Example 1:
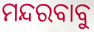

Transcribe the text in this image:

ମନ୍ଦରବାବୁ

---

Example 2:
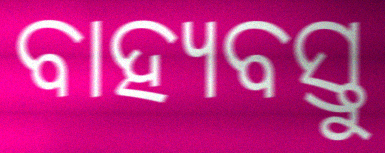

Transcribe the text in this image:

ବାହ୍ୟବସ୍ତୁ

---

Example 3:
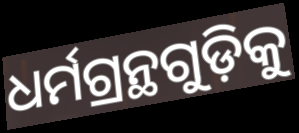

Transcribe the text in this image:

ଧର୍ମଗ୍ରନ୍ଥଗୁଡ଼ିକୁ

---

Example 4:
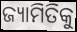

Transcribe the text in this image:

ଜ୍ୟାମିତିକୁ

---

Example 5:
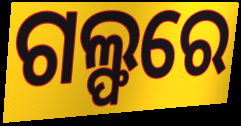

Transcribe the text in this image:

ଗଲ୍ଫରେ